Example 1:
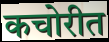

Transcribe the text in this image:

कचोरीत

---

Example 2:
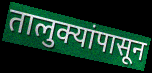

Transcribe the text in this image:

तालुक्यांपासून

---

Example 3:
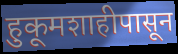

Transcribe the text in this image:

हुकूमशाहीपासून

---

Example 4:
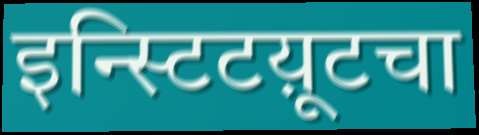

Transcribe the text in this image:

इन्स्टिटय़ूटचा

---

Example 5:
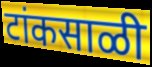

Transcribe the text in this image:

टांकसाळी